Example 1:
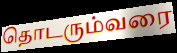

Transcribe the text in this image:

தொடரும்வரை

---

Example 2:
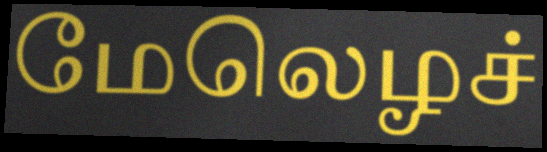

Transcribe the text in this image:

மேலெழச்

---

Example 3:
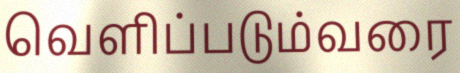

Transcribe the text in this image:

வெளிப்படும்வரை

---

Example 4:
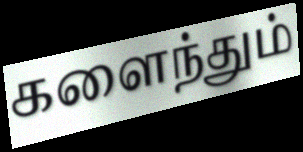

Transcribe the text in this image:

களைந்தும்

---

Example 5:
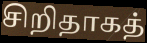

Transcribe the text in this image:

சிறிதாகத்